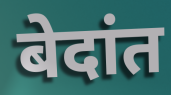
बेदांत